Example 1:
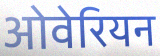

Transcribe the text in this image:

ओवेरियन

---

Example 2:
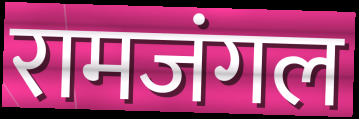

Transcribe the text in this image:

रामजंगल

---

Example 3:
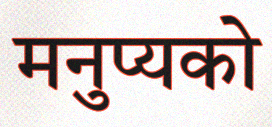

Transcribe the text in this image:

मनुप्यको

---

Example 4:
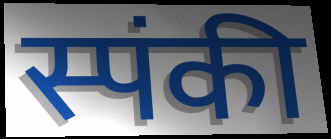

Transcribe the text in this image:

स्पंकी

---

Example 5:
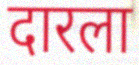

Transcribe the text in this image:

दारला